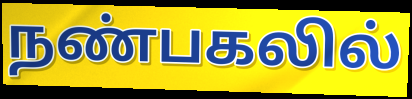
நண்பகலில்